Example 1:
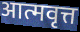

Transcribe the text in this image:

आत्मवृत्त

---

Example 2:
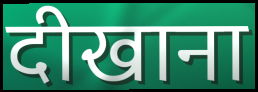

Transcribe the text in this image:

दीखाना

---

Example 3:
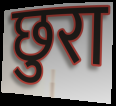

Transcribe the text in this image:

छुरा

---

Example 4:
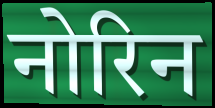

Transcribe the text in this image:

नोरिन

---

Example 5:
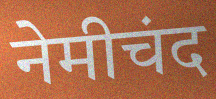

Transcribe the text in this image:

नेमीचंद